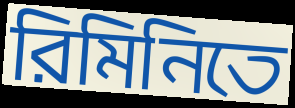
রিমিনিতে